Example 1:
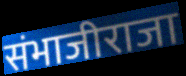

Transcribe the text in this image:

संभाजीराजा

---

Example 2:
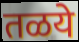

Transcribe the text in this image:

तळये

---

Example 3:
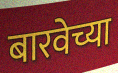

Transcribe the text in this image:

बारवेच्या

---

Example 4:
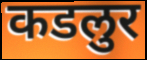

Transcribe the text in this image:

कडलुर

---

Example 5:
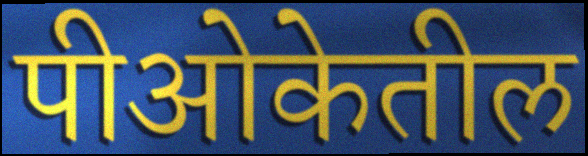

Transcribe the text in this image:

पीओकेतील